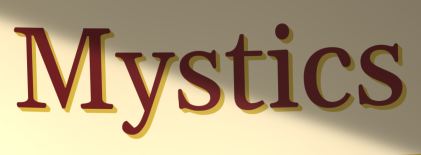
Mystics